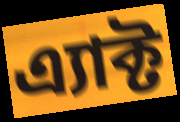
এ্যাক্ট